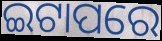
ଇଟାପରେ